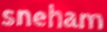
sneham